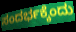
ಸಂದರ್ಭಕ್ಕೆಂದು